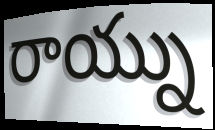
రాయ్ను